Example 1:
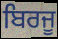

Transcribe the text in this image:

ਬਿਰਜੂ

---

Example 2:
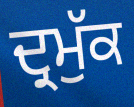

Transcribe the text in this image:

ਦ੍ਰਮੁੱਕ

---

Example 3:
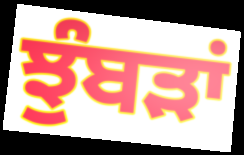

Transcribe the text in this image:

ਝੁੰਬੜਾਂ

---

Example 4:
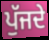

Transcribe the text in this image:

ਪੁੱਜਦੇ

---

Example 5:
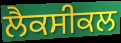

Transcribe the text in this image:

ਲੈਕਸੀਕਲ